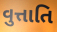
વુત્તાતિ